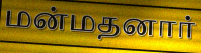
மன்மதனார்